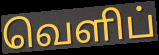
வெளிப்